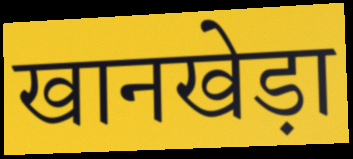
खानखेड़ा